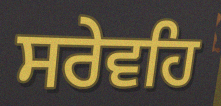
ਸਰੇਵਹਿ